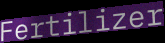
Fertilizer